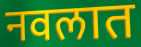
नवलात